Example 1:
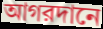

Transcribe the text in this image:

আগরদানে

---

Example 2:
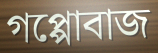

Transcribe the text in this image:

গপ্পোবাজ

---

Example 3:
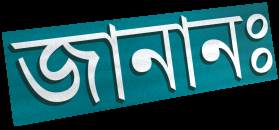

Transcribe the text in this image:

জানানঃ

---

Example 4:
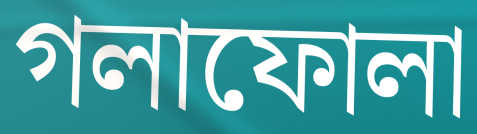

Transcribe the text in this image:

গলাফোলা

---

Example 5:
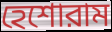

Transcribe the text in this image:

হেশোরাম